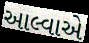
આલ્વાએ